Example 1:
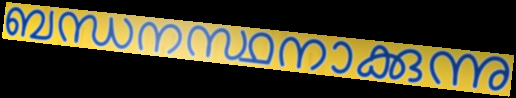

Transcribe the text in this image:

ബന്ധനസ്ഥനാക്കുന്നു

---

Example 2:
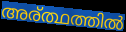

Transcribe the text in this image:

അര്ത്ഥത്തിൽ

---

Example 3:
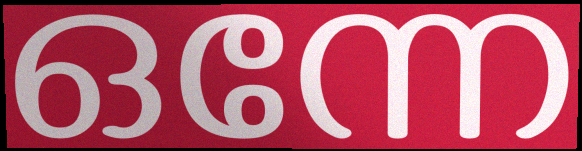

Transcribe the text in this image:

ഒന്നേ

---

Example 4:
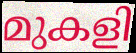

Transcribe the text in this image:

മുകളി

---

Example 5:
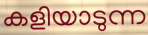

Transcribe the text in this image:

കളിയാടുന്ന